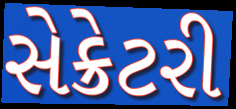
સેક્રેટરી